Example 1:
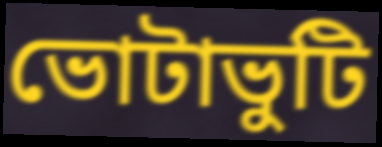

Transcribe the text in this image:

ভোটাভুটি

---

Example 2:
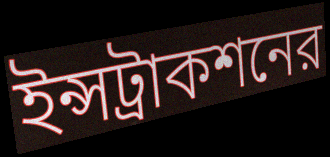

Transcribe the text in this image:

ইন্সট্রাকশনের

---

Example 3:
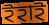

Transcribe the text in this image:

ইহাই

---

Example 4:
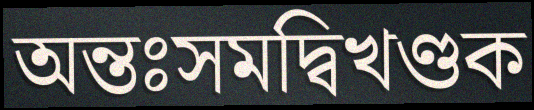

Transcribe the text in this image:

অন্তঃসমদ্বিখণ্ডক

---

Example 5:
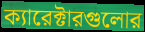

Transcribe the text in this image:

ক্যারেক্টারগুলোর